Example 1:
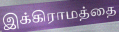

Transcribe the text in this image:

இக்கிராமத்தை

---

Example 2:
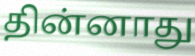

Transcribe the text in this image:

தின்னாது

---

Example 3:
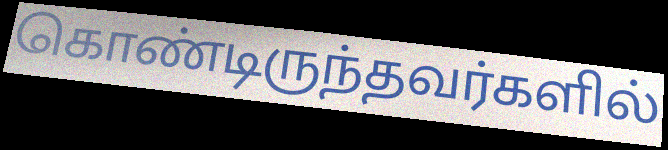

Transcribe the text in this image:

கொண்டிருந்தவர்களில்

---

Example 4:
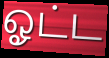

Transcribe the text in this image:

ஓட்ட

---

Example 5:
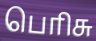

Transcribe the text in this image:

பெரிசு